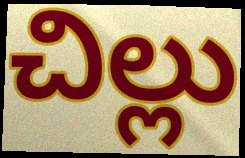
చిల్లు